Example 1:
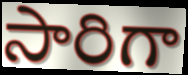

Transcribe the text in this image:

సారిగా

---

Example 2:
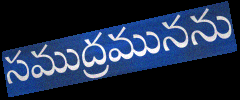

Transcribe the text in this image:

సముద్రమునను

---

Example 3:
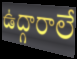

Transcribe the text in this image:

ఉద్గారాలే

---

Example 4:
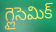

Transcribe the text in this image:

గ్లైసెమిక్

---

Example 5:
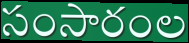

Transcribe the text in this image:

సంసారంల